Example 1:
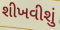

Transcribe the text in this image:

શીખવીશું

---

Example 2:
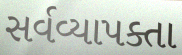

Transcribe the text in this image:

સર્વવ્યાપક્તા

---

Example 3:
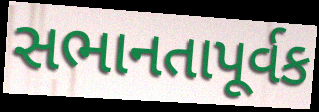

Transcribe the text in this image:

સભાનતાપૂર્વક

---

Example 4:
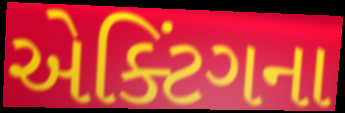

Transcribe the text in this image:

એક્ટિંગના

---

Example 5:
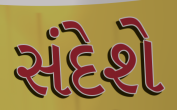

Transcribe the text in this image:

સંદેશે